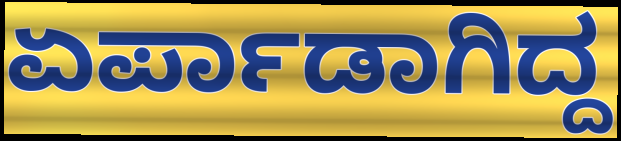
ಏರ್ಪಾಡಾಗಿದ್ದ